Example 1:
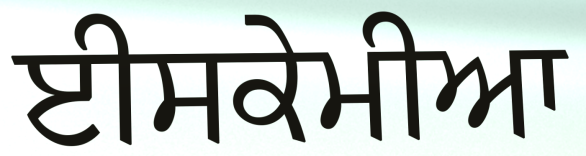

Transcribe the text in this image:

ਈਸਕੇਮੀਆ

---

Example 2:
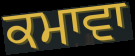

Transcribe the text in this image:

ਕਮਾਵਾ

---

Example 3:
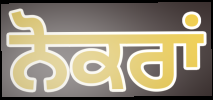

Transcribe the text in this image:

ਨੋਕਰਾਂ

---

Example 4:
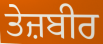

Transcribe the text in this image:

ਤੇਜ਼ਬੀਰ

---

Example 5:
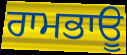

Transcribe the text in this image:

ਰਾਮਭਾਊ